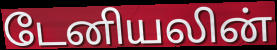
டேனியலின்